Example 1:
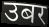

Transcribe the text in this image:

उबर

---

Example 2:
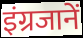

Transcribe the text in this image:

इंग्रजानें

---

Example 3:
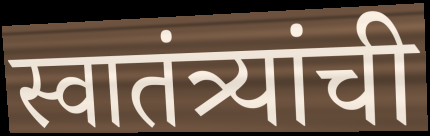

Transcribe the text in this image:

स्वातंत्र्यांची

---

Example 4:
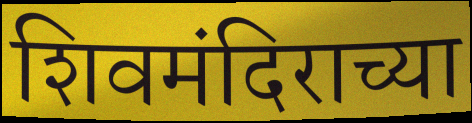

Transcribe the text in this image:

शिवमंदिराच्या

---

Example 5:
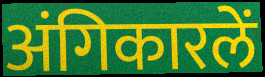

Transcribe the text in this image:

अंगिकारलें